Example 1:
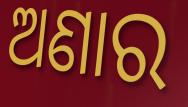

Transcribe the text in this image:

ଅଣାର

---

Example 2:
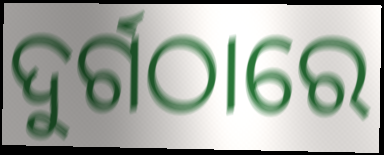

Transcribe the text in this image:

ଦୁର୍ଗଠାରେ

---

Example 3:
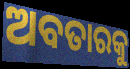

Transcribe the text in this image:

ଅବତାରକୁ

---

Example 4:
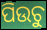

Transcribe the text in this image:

ପିଉଚୁ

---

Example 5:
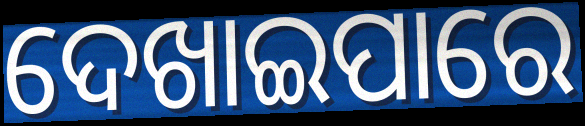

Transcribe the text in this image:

ଦେଖାଇପାରେ